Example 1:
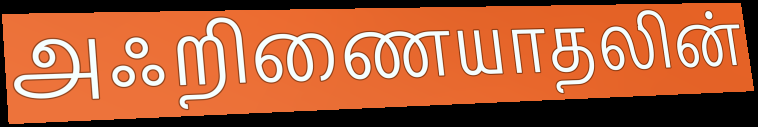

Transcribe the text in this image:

அஃறிணையாதலின்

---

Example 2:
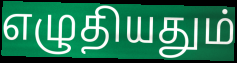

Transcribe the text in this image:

எழுதியதும்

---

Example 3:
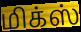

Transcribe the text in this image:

மிக்ஸ்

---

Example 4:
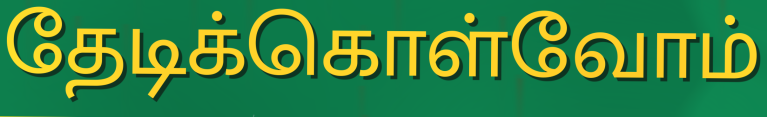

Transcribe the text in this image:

தேடிக்கொள்வோம்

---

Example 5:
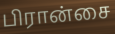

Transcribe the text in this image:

பிரான்சை